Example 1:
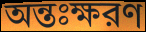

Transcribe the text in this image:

অন্তঃক্ষরণ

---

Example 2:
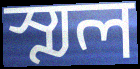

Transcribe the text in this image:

স্মল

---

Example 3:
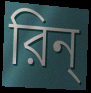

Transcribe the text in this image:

রিন্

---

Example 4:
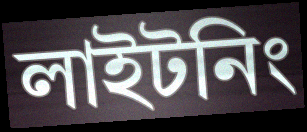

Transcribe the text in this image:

লাইটনিং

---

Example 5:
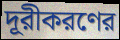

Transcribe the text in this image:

দূরীকরণের